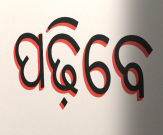
ପଢ଼ିବେ